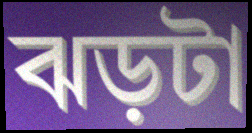
ঝড়টা